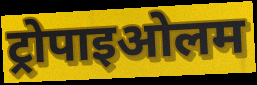
ट्रोपाइओलम